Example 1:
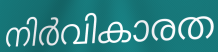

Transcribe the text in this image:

നിർവികാരത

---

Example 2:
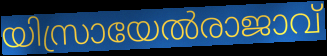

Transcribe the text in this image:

യിസ്രായേൽരാജാവ്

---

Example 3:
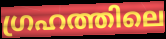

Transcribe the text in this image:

ഗ്രഹത്തിലെ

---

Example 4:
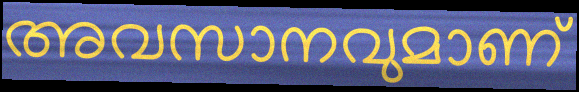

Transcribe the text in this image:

അവസാനവുമാണ്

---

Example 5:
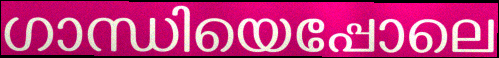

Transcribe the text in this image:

ഗാന്ധിയെപ്പോലെ